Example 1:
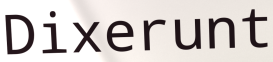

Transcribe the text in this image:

Dixerunt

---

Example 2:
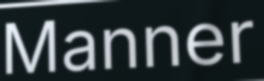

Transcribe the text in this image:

Manner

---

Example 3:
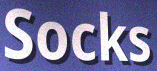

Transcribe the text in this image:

Socks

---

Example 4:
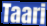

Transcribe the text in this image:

Taari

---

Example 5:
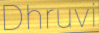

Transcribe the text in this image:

Dhruvi